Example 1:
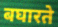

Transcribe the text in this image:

बघारते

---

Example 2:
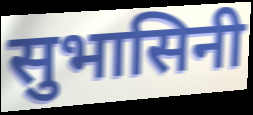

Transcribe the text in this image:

सुभासिनी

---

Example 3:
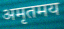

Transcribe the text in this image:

अमृतमय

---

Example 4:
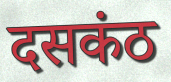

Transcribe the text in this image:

दसकंठ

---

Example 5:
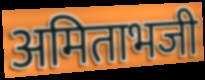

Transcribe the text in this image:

अमिताभजी